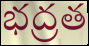
భద్రత